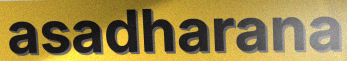
asadharana